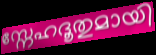
സ്നേഹദൂതുമായി